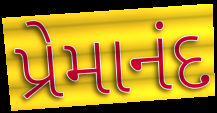
પ્રેમાનંદ